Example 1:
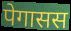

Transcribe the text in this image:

पेगासस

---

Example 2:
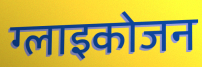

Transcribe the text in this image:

ग्लाइकोजन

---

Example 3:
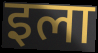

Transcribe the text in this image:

इला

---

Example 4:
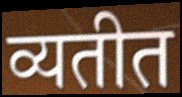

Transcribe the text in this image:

व्यतीत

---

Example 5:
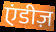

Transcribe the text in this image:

एंडीज़